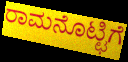
ರಾಮನೊಟ್ಟಿಗೆ